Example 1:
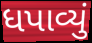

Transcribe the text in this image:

ધપાવ્યું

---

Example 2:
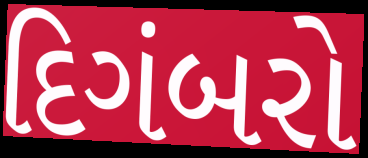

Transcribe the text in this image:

દિગંબરો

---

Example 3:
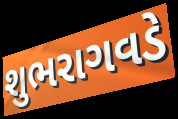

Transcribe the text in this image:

શુભરાગવડે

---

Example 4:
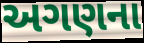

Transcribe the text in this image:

અગણના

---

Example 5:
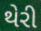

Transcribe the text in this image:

થેરી